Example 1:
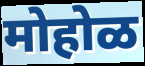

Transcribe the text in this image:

मोहोळ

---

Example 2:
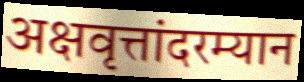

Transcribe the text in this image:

अक्षवृत्तांदरम्यान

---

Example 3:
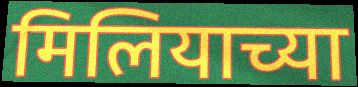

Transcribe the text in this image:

मिलियाच्या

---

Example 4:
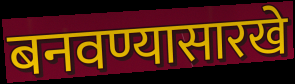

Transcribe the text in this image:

बनवण्यासारखे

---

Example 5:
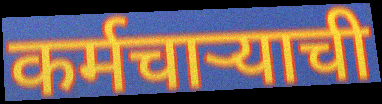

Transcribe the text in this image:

कर्मचार्‍याची